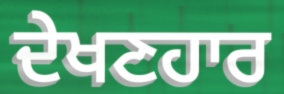
ਦੇਖਣਹਾਰ